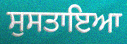
ਸੁਸਤਾਇਆ